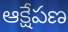
ఆక్షేపణ